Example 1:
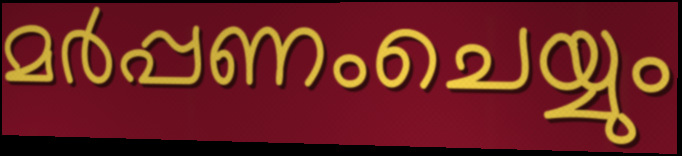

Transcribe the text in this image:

മർപ്പണംചെയ്യും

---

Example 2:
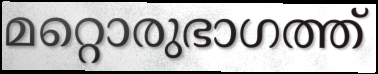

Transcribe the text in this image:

മറ്റൊരുഭാഗത്ത്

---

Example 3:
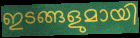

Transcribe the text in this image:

ഇടങ്ങളുമായി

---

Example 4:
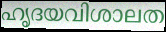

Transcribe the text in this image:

ഹൃദയവിശാലത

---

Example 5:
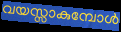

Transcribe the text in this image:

വയസ്സാകുമ്പോൾ